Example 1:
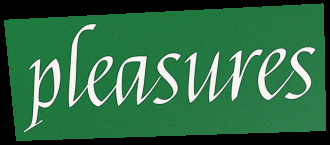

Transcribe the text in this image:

pleasures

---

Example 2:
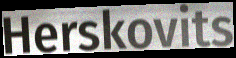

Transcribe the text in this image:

Herskovits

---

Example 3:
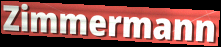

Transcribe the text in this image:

Zimmermann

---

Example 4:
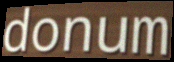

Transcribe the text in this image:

donum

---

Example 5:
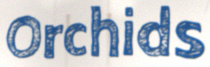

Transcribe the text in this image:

Orchids